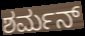
ಶರ್ಮನ್